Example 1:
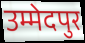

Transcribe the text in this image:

उम्मेदपुर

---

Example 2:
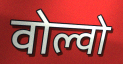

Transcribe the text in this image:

वोल्वो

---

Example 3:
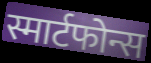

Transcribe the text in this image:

स्मार्टफोन्स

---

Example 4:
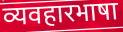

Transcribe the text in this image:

व्यवहारभाषा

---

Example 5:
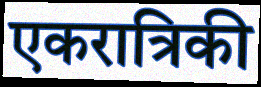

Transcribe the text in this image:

एकरात्रिकी